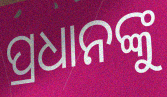
ପ୍ରଧାନଙ୍କୁ